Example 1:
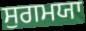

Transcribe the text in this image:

ਸੁਗਮਯਾ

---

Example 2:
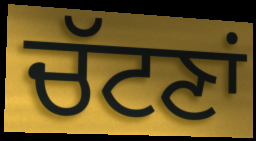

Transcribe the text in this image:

ਚੱਟਣਾਂ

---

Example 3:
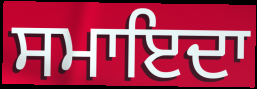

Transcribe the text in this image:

ਸਮਾਇਦਾ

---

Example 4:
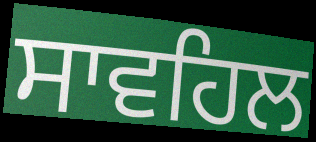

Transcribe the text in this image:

ਸਾਵਹਿਲ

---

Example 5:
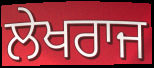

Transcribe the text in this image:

ਲੇਖਰਾਜ